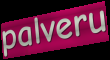
palveru